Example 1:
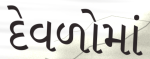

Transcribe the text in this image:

દેવળોમાં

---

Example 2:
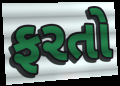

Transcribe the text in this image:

ફરતો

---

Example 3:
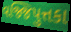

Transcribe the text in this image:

વજ્જિપુત્તકા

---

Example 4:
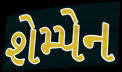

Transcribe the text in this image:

શેમ્પેન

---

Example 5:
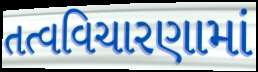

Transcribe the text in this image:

તત્વવિચારણામાં